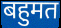
बहुमत